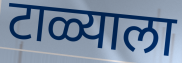
टाळ्याला